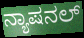
ನ್ಯಾಷನಲ್